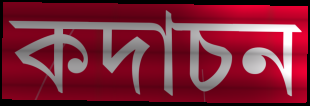
কদাচন